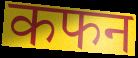
कफन